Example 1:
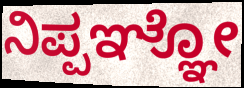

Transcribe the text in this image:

ನಿಪ್ಪಞ್ಞೋ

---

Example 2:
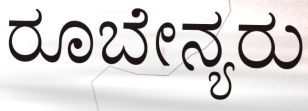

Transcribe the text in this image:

ರೂಬೇನ್ಯರು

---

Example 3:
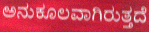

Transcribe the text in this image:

ಅನುಕೂಲವಾಗಿರುತ್ತದೆ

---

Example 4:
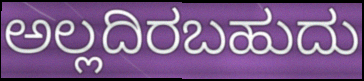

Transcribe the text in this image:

ಅಲ್ಲದಿರಬಹುದು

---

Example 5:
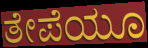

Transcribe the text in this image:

ತೇಪೆಯೂ